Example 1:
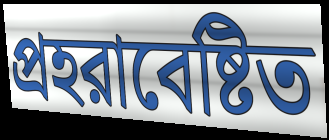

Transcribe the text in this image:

প্রহরাবেষ্টিত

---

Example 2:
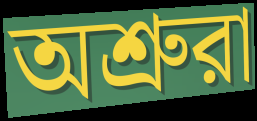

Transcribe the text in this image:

অশ্রুরা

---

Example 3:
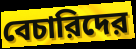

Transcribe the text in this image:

বেচারিদের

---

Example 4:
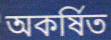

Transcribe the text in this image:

অকর্ষিত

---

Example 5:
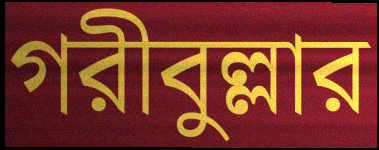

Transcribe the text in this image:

গরীবুল্লার